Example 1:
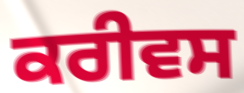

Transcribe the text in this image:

ਕਰੀਵਸ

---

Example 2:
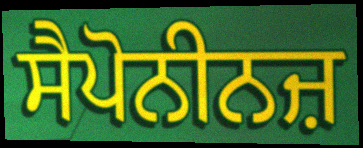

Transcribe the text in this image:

ਸੈਪੋਨੀਨਜ਼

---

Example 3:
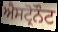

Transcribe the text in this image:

ਐਸਟ੍ਰੋਨੌਟ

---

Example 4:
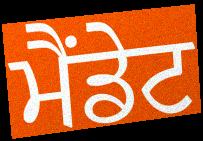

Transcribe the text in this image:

ਮੈਂਡੇਟ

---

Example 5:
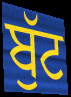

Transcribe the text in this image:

ਬੁੱਟ